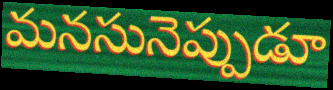
మనసునెప్పుడూ